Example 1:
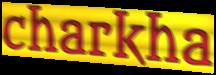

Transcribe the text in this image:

charkha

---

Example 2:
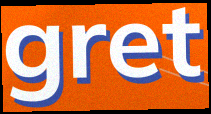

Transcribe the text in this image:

gret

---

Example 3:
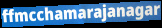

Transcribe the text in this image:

ffmcchamarajanagar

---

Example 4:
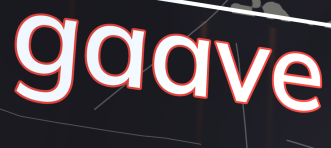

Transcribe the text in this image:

gaave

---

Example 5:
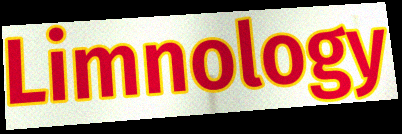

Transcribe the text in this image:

Limnology